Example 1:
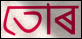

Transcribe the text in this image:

তোৰ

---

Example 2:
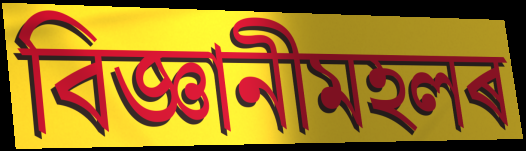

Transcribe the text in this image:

বিজ্ঞানীমহলৰ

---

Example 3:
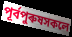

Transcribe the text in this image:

পূৰ্বপুৰুষসকলে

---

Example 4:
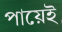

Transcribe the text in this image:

পায়েই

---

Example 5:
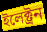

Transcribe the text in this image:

ইলেক্ট্ৰন